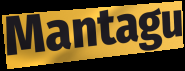
Mantagu